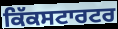
ਕਿੱਕਸਟਾਰਟਰ